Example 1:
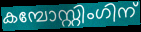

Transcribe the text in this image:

കമ്പോസ്റ്റിംഗിന്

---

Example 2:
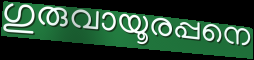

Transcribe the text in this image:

ഗുരുവായൂരപ്പനെ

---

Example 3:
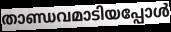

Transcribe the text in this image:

താണ്ഡവമാടിയപ്പോൾ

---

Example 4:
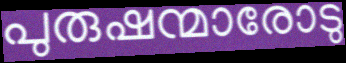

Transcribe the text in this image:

പുരുഷന്മാരോടു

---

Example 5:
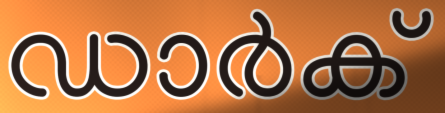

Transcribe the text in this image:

ഡാർക്